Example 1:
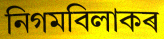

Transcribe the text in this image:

নিগমবিলাকৰ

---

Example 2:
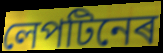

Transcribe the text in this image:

লেপটিনেৰ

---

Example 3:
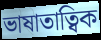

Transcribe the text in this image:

ভাষাতাত্বিক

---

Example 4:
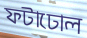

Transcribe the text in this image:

ফটাঢোল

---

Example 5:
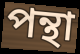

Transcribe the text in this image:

পন্থা